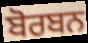
ਬੋਰਬਨ